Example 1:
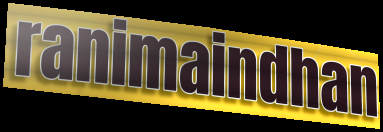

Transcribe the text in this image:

ranimaindhan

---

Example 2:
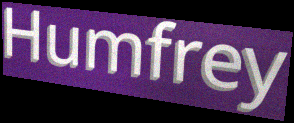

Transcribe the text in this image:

Humfrey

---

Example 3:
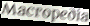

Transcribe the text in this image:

Macropedia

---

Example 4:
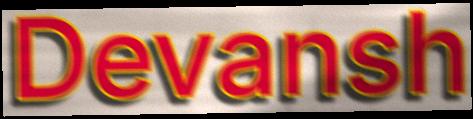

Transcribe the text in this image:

Devansh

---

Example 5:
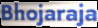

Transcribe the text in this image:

Bhojaraja